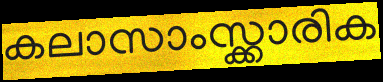
കലാസാംസ്ക്കാരിക